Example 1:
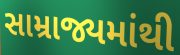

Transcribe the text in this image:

સામ્રાજ્યમાંથી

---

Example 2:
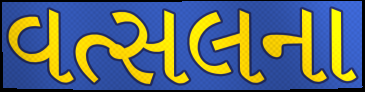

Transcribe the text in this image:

વત્સલના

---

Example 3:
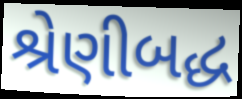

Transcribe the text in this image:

શ્રેણીબદ્ધ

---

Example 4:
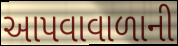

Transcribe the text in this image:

આપવાવાળાની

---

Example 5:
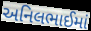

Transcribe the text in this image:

અનિલભાઈમાં